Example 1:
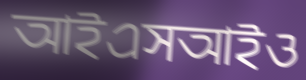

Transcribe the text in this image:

আইএসআইও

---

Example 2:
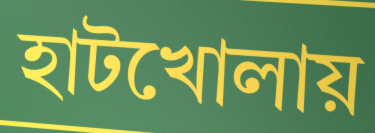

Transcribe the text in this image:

হাটখোলায়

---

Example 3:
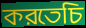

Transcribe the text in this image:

করতেচি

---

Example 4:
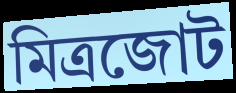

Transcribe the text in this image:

মিত্রজোট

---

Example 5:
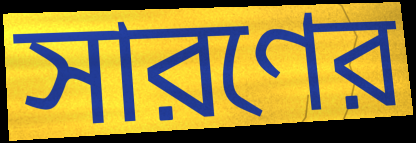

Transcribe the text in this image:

সারণের